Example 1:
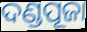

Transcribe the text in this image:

ଦଣ୍ଡପୂଜା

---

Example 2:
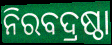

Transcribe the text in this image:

ନିରବଦ୍ରଷ୍ଠା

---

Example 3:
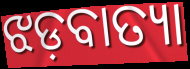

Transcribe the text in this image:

ଝଡ଼ବାତ୍ୟା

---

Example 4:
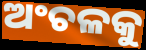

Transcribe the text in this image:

ଅଂଚଳକୁ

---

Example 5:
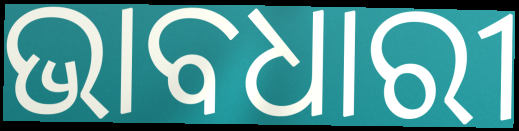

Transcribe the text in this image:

ଭାବଧାରୀ